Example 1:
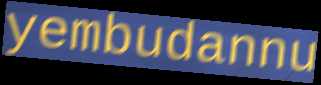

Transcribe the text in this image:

yembudannu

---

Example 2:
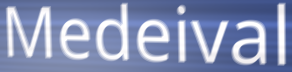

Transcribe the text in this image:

Medeival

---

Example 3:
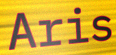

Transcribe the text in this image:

Aris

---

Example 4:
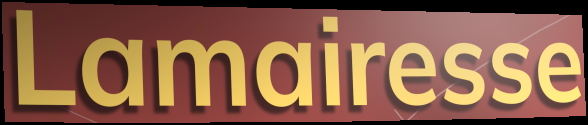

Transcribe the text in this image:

Lamairesse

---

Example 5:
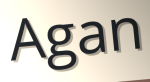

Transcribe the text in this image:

Agan